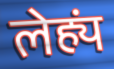
लेह्यं